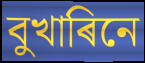
বুখাৰিনে